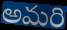
అమరి